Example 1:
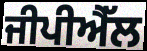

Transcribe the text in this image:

ਜੀਪੀਐੱਲ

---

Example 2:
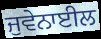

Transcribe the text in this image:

ਜੁਵੇਨਾਈਲ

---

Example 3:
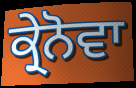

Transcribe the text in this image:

ਕ੍ਰੇਨੋਵਾ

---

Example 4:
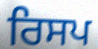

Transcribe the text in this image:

ਰਿਸਪ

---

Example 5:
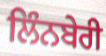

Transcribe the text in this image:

ਲਿੰਨਬੇਰੀ